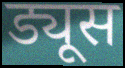
ड्यूस